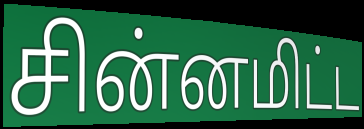
சின்னமிட்ட